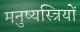
मनुष्यस्त्रियों